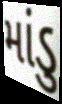
માંડુ